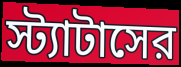
স্ট্যাটাসের